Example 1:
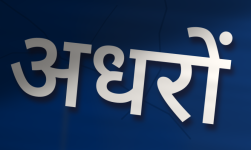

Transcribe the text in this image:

अधरों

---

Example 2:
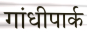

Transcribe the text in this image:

गांधीपार्क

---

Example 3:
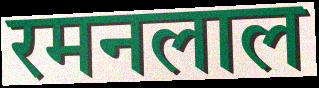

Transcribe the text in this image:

रमनलाल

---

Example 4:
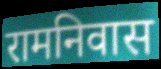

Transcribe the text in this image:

रामनिवास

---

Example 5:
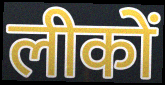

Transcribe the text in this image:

लीकों